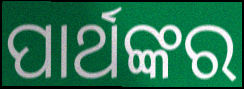
ପାର୍ଥଙ୍କର